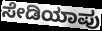
ಸೇಡಿಯಾಪು